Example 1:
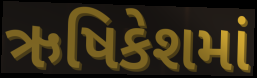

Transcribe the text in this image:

ઋષિકેશમાં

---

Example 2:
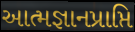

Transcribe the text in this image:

આત્મજ્ઞાનપ્રાપ્તિ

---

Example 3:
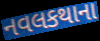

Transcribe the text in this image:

નવલકથાના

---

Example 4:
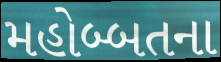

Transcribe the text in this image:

મહોબ્બતના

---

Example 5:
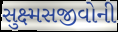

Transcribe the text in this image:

સુક્ષ્મસજીવોની